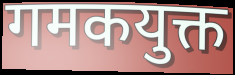
गमकयुक्त